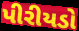
પીરીયડો